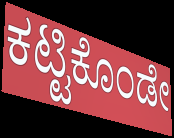
ಕಟ್ಟಿಕೊಂಡೇ